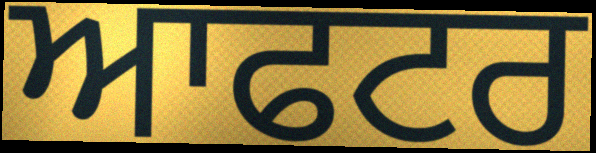
ਆਫਟਰ